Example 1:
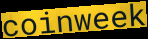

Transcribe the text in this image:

coinweek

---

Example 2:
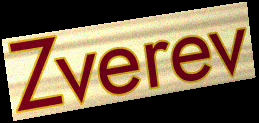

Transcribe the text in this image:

Zverev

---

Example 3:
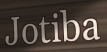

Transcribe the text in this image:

Jotiba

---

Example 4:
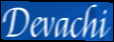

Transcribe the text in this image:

Devachi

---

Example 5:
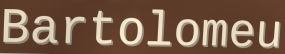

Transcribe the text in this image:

Bartolomeu